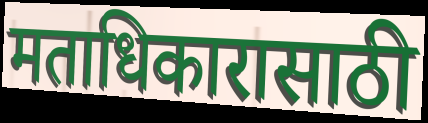
मताधिकारासाठी